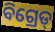
ବିଗ୍ରେଡ୍